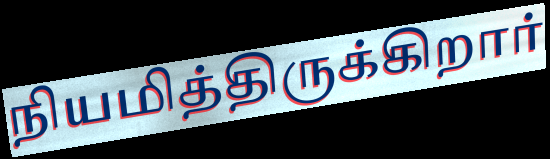
நியமித்திருக்கிறார்